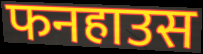
फनहाउस